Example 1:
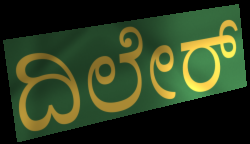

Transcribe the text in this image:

ದಿಲೇರ್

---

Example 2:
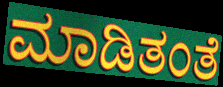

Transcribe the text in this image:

ಮಾಡಿತಂತೆ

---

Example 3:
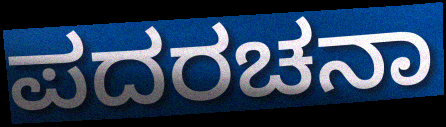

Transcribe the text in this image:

ಪದರಚನಾ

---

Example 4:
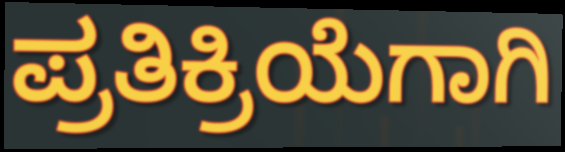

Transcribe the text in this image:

ಪ್ರತಿಕ್ರಿಯೆಗಾಗಿ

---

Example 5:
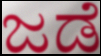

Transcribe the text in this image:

ಜಡೆ